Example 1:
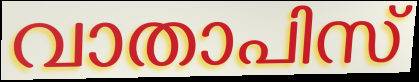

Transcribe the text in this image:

വാതാപിസ്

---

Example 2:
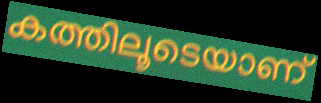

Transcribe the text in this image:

കത്തിലൂടെയാണ്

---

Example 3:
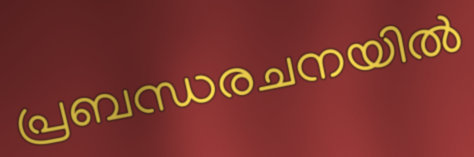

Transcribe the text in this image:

പ്രബന്ധരചനയിൽ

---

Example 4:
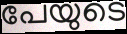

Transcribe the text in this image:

പേയുടെ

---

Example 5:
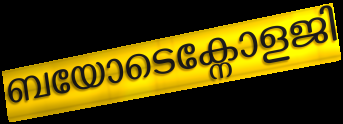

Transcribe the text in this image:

ബയോടെക്നോളജി